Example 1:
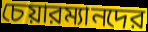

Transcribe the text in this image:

চেয়ারম্যানদের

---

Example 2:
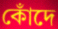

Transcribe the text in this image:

কোঁদে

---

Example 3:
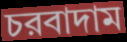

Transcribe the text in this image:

চরবাদাম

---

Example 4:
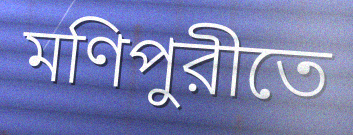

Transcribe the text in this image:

মণিপুরীতে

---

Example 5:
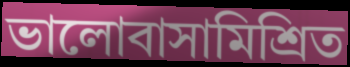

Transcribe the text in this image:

ভালোবাসামিশ্রিত